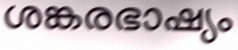
ശങ്കരഭാഷ്യം